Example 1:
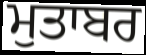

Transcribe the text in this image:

ਮੁਤਾਬਰ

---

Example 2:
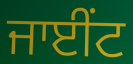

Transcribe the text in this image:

ਜਾਈਂਟ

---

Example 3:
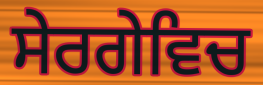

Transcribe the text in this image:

ਸੇਰਗੇਵਿਚ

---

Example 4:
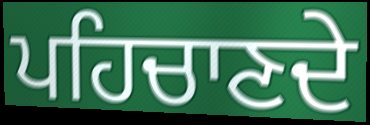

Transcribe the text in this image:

ਪਹਿਚਾਣਦੇ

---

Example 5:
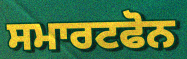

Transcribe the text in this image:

ਸਮਾਰਟਫੋਨ